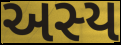
અસ્ય